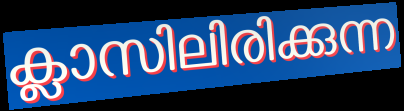
ക്ലാസിലിരിക്കുന്ന